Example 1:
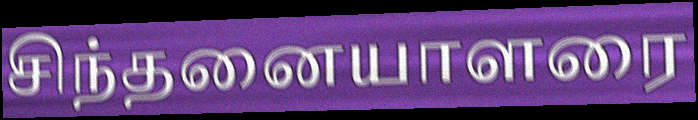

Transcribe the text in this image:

சிந்தனையாளரை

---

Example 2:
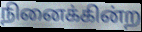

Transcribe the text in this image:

நினைக்கின்ற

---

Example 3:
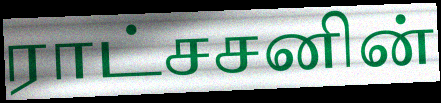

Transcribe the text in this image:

ராட்சசனின்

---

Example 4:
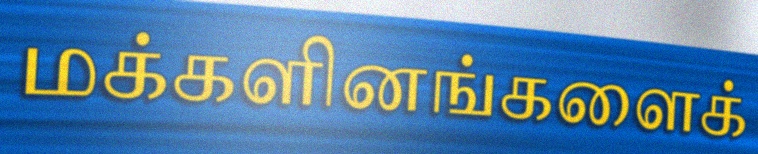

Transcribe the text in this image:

மக்களினங்களைக்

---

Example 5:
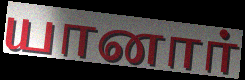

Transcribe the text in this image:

யானார்